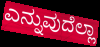
ಎನ್ನುವುದೆಲ್ಲಾ